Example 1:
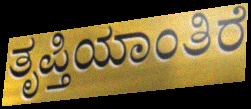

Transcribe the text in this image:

ತೃಪ್ತಿಯಾಂತಿರೆ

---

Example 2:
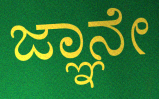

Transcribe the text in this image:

ಜ್ಞಾನೇ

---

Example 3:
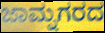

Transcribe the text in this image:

ಜಾಮ್ನಗರದ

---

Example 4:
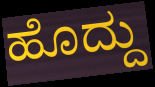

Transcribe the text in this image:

ಹೊದ್ದು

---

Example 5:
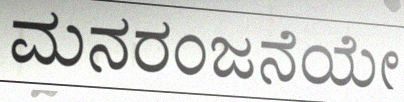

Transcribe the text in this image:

ಮನರಂಜನೆಯೇ